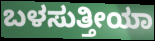
ಬಳಸುತ್ತೀಯಾ